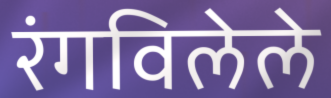
रंगविलेले